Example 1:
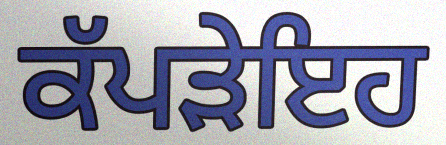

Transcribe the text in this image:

ਕੱਪੜੇਇਹ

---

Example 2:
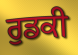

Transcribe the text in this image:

ਰੁਡਕੀ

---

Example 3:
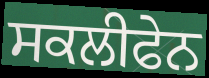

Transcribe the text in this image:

ਸਕਲੀਫੇਨ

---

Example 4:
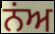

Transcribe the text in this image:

ਨਂਅ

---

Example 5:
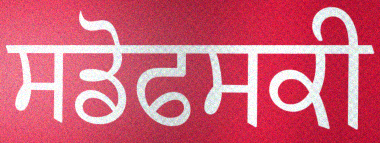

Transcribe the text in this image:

ਸਡੋਫਸਕੀ